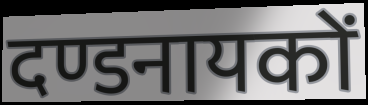
दण्डनायकों